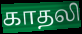
காதலி